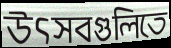
উৎসবগুলিতে